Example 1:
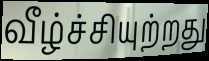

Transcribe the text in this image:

வீழ்ச்சியுற்றது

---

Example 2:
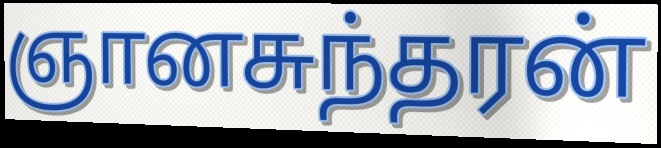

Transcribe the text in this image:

ஞானசுந்தரன்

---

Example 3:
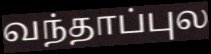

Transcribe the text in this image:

வந்தாப்புல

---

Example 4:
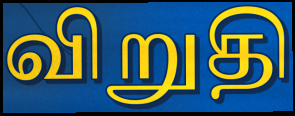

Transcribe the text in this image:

விறுதி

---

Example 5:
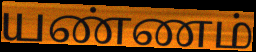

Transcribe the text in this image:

யண்ணம்